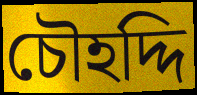
চৌহদ্দি